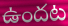
ఉందట